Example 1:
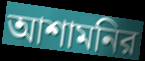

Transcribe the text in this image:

আশামনির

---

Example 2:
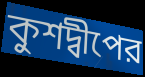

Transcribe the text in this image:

কুশদ্বীপের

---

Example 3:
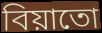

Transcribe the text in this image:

বিয়াতো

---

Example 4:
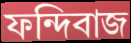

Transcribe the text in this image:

ফন্দিবাজ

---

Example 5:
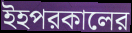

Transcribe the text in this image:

ইহপরকালের